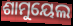
ଶାମୁୟେଲ